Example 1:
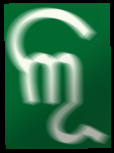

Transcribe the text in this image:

ଳୂ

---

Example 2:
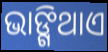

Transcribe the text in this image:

ଭାଙ୍ଗିଥାଏ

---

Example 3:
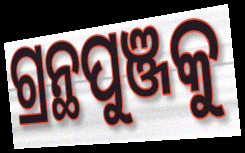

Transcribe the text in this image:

ଗ୍ରନ୍ଥପୁଞ୍ଜକୁ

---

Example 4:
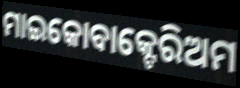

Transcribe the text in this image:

ମାଇକୋବାକ୍ଟେରିଅମ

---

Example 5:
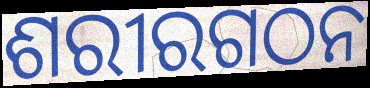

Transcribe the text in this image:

ଶରୀରଗଠନ